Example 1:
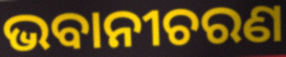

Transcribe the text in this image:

ଭବାନୀଚରଣ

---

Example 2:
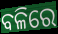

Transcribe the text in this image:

ବଳିରେ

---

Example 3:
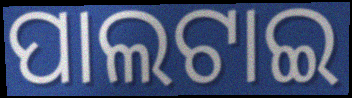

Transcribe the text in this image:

ପାଲଟାଇ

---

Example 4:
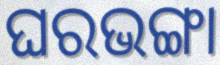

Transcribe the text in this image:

ଘରଭଙ୍ଗା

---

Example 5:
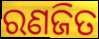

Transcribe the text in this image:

ରଣଜିତ